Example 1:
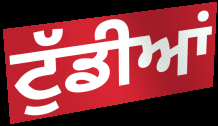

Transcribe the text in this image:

ਟੁੱਡੀਆਂ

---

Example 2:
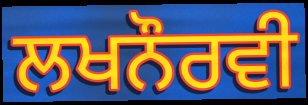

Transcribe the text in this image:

ਲਖਨੌਰਵੀ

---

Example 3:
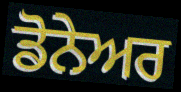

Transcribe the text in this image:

ਡੋਨੇਅਰ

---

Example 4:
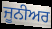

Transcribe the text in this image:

ਜੂਨੀਅਰ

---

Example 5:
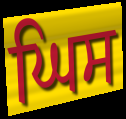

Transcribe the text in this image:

ਘਿਸ